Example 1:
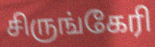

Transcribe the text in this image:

சிருங்கேரி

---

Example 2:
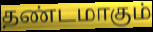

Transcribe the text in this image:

தண்டமாகும்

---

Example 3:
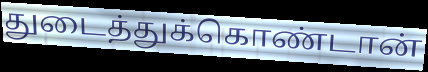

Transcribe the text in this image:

துடைத்துக்கொண்டான்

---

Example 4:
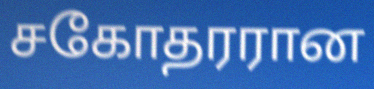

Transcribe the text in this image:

சகோதரரான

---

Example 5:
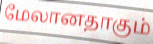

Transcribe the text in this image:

மேலானதாகும்